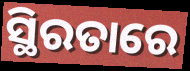
ସ୍ଥିରତାରେ